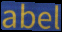
abel